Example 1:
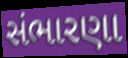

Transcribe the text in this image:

સંભારણા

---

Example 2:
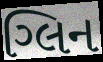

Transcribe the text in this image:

ગ્લિન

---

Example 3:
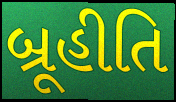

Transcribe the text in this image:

બ્રૂહીતિ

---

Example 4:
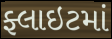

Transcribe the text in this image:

ફ્લાઇટમાં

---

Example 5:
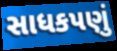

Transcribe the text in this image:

સાધકપણું